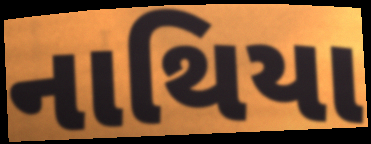
નાથિયા